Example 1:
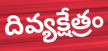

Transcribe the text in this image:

దివ్యక్షేత్రం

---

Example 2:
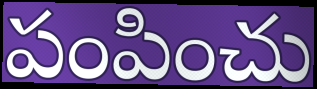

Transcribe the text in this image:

పంపించు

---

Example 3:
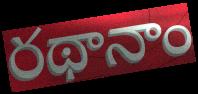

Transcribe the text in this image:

రథానాం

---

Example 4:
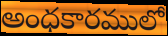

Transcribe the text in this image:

అంధకారములో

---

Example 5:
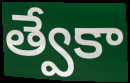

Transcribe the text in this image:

త్వేకా